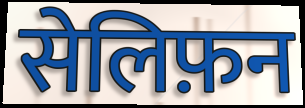
सेलिफ़न